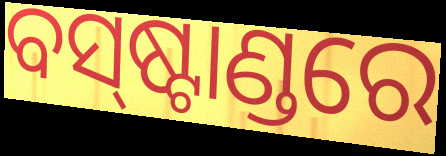
ବସ୍‍ଷ୍ଟାଣ୍ଡରେ